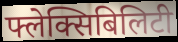
फ्लेक्सिबिलिटी